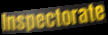
Inspectorate